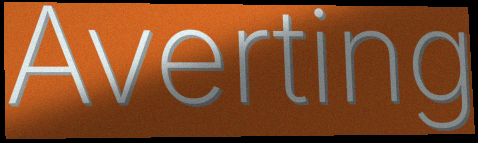
Averting